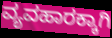
ವ್ಯವಹಾರಕ್ಕಾಗಿ